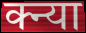
क्न्या